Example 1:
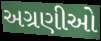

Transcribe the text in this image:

અગ્રણીઓ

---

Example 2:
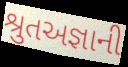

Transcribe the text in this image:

શ્રુતઅજ્ઞાની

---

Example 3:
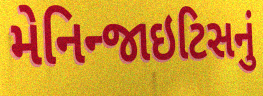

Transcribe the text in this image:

મેનિન્જાઇટિસનું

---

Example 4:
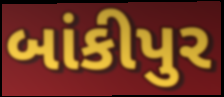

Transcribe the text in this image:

બાંકીપુર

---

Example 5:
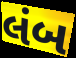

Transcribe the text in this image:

લંબ